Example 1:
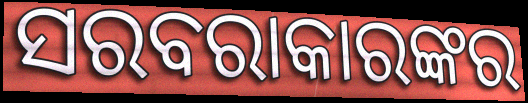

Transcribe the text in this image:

ସରବରାକାରଙ୍କର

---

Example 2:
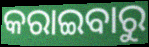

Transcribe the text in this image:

କରାଇବାରୁ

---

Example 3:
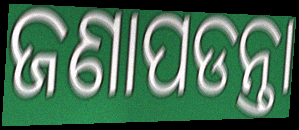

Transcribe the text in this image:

ଜଣାପଡନ୍ତା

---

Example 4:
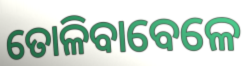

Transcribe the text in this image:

ତୋଳିବାବେଳେ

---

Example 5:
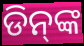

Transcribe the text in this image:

ଡିନ୍‍ଙ୍କ